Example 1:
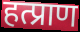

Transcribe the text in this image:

हत्प्राण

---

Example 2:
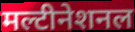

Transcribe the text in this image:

मल्टीनेशनल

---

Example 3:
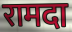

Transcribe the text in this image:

रामदा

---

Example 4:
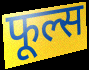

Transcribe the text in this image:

फूल्स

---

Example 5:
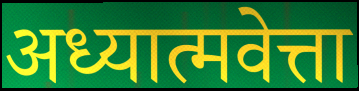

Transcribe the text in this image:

अध्यात्मवेत्ता